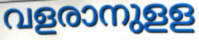
വളരാനുളള